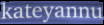
kateyannu